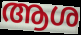
ആശ